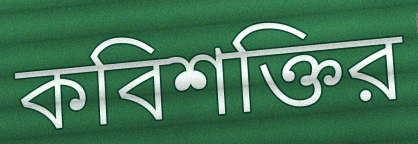
কবিশক্তির